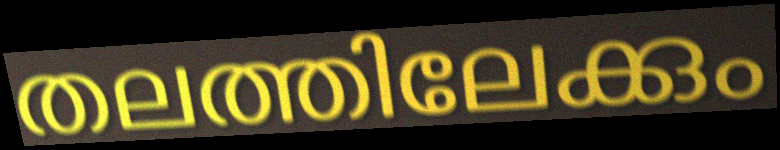
തലത്തിലേക്കും